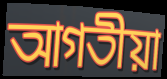
আগতীয়া